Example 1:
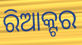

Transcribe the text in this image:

ରିଆକ୍ଟର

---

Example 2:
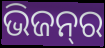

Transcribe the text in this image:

ଭିଜନ୍‌ର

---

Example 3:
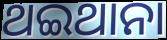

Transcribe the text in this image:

ଥଇଥାନା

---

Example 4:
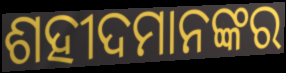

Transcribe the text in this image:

ଶହୀଦମାନଙ୍କର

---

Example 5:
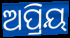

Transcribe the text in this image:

ଅପ୍ରିୟ